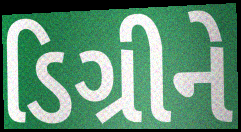
ડિગ્રીને